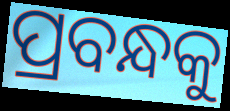
ପ୍ରବନ୍ଧକୁ